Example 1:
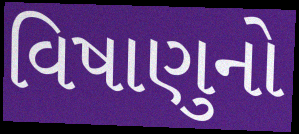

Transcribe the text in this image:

વિષાણુનો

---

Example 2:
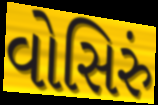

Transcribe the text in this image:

વોસિરું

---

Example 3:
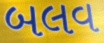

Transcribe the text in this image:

બલવ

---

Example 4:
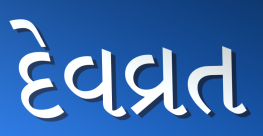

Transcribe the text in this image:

દેવવ્રત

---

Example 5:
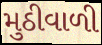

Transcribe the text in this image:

મુઠીવાળી